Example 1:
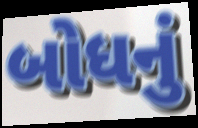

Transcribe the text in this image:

બોધનું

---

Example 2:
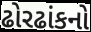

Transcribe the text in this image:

ઢોરઢાંકનો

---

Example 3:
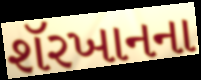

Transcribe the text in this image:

શૅરખાનના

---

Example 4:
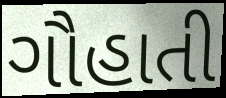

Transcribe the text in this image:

ગૌહાતી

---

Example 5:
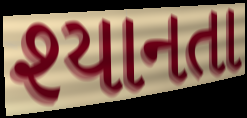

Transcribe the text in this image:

શ્યાનતા